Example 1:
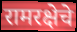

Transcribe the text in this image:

रामरक्षेचे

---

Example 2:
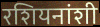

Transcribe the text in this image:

रशियनांशी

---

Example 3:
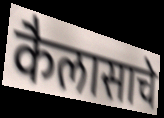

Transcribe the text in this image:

कैलासाचे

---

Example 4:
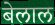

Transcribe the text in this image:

बेलाल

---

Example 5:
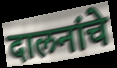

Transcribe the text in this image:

दालनांचे